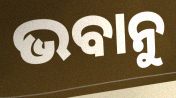
ଭବାନୁ